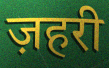
ज़हरी